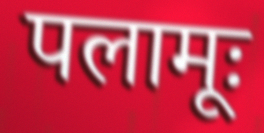
पलामूः